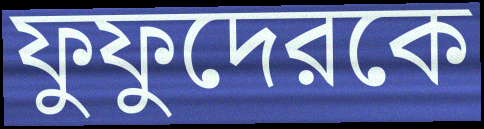
ফুফুদেরকে